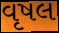
વૃષલ